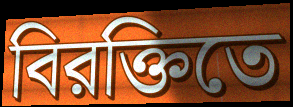
বিরক্তিতে